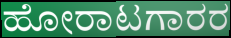
ಹೋರಾಟಗಾರರ